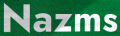
Nazms